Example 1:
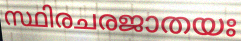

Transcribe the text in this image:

സ്ഥിരചരജാതയഃ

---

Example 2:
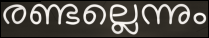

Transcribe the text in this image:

രണ്ടല്ലെന്നും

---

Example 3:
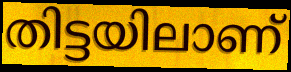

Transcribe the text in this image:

തിട്ടയിലാണ്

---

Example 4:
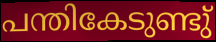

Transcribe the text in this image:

പന്തികേടുണ്ടു്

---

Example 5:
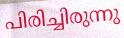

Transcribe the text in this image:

പിരിച്ചിരുന്നു